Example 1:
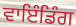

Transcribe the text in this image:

ਵਾਇੰਡਿੰਗ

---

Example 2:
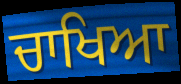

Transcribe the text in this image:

ਚਾਖਿਆ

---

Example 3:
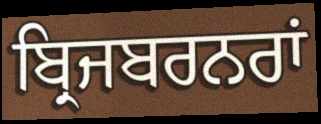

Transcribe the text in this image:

ਬ੍ਰਿਜਬਰਨਰਾਂ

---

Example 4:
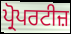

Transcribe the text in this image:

ਪ੍ਰੋਪਰਟੀਜ਼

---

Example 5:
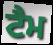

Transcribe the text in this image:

ਟੈਮ